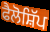
ਫੈਲੋਸ਼ਿੱਪ